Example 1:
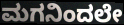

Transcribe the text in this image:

ಮಗನಿಂದಲೇ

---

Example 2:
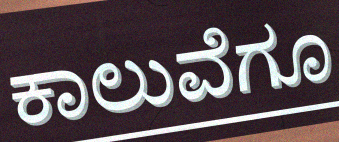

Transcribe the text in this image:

ಕಾಲುವೆಗೂ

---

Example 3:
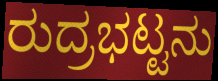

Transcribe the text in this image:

ರುದ್ರಭಟ್ಟನು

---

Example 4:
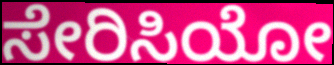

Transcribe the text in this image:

ಸೇರಿಸಿಯೋ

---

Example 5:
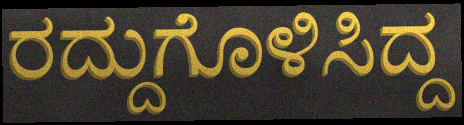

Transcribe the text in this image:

ರದ್ದುಗೊಳಿಸಿದ್ದ